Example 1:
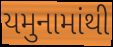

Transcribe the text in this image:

યમુનામાંથી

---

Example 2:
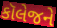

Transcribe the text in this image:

કૉલેજને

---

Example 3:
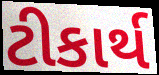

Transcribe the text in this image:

ટીકાર્થ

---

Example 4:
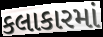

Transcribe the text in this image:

કલાકારમાં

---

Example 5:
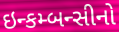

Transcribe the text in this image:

ઇન્કમ્બન્સીનો